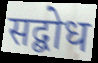
सद्बोध